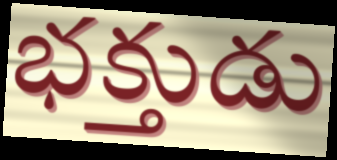
భక్తుడు